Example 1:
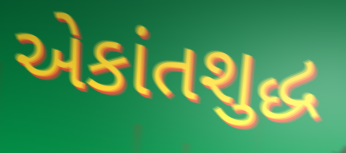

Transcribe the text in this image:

એકાંતશુદ્ધ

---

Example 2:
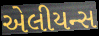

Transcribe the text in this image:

એલીયન્સ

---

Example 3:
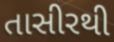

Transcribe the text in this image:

તાસીરથી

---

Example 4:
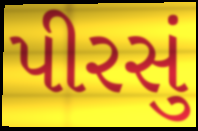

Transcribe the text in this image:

પીરસું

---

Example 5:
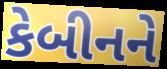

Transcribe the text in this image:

કેબીનને